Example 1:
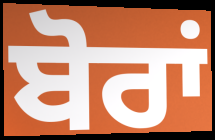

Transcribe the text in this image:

ਬੋਰਾਂ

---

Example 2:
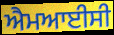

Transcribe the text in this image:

ਐਮਆਈਸੀ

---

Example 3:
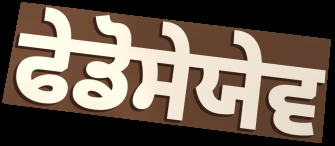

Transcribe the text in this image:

ਫੇਡੋਸੇਯੇਵ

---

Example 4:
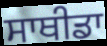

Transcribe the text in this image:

ਸਾਥੀਡਾ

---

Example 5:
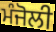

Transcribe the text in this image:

ਮੰਜੋਲੀ